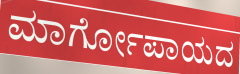
ಮಾರ್ಗೋಪಾಯದ